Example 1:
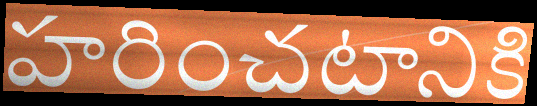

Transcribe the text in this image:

హరించటానికి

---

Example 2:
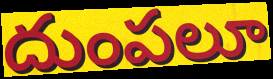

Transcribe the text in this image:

దుంపలూ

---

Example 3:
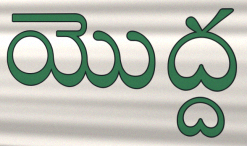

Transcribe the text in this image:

యొద్ద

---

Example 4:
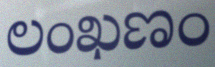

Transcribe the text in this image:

లంఖణం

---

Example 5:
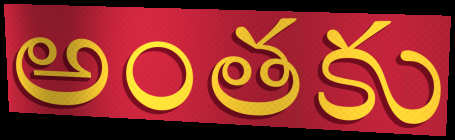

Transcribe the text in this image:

అంతకు